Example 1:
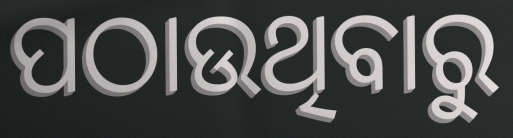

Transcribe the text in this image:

ପଠାଉଥିବାରୁ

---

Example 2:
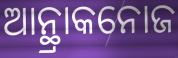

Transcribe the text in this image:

ଆନ୍ଥ୍ରାକନୋଜ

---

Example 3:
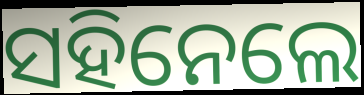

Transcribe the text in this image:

ସହିନେଲେ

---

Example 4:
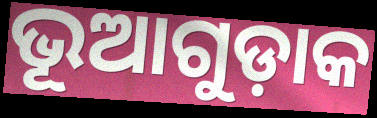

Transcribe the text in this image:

ଭୂଆଗୁଡ଼ାକ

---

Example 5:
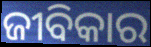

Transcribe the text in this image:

ଜୀବିକାର